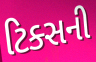
ટિક્સની